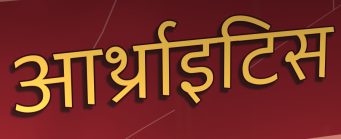
आर्थ्राइटिस